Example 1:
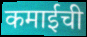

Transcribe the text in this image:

कमाईची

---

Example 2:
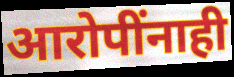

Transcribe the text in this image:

आरोपींनाही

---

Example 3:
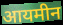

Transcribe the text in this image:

आयमीन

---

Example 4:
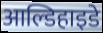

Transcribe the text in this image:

आल्डिहाइडे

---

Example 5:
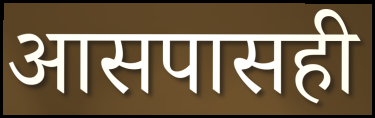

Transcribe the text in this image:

आसपासही